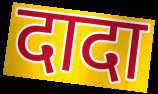
दादा